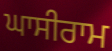
ਘਾਸੀਰਾਮ